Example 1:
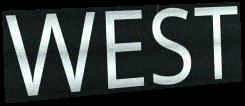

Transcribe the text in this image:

WEST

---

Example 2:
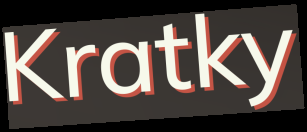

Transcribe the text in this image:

Kratky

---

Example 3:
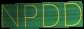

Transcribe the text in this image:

NPDD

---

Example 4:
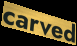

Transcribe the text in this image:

carved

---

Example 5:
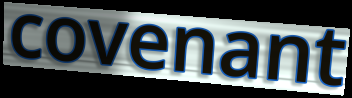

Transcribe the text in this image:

covenant